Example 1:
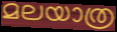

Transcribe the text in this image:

മലയാത്ര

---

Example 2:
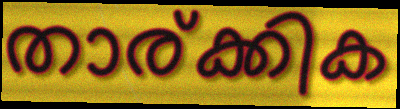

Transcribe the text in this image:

താര്ക്കിക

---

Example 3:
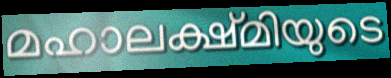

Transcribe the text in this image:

മഹാലക്ഷ്മിയുടെ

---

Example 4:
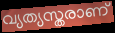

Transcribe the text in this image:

വ്യത്യസ്തരാണ്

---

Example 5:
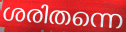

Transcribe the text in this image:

ശരിതന്നെ